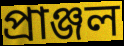
প্ৰাঞ্জল